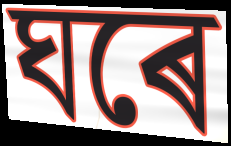
ঘৰে